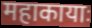
महाकायाः